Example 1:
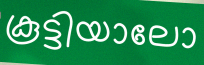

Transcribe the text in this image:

കൂട്ടിയാലോ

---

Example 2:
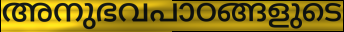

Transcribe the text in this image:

അനുഭവപാഠങ്ങളുടെ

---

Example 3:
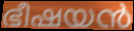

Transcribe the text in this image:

ഭീഷയൻ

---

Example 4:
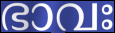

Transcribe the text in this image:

ഭാവഃ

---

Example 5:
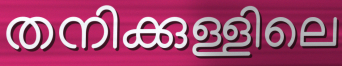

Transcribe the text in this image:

തനിക്കുള്ളിലെ